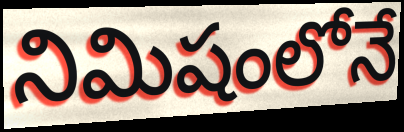
నిమిషంలోనే